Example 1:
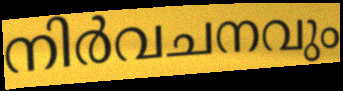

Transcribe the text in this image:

നിർവചനവും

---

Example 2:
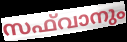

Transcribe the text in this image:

സഫ്‌വാനും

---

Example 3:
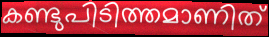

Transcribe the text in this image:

കണ്ടുപിടിത്തമാണിത്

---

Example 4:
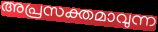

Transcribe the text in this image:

അപ്രസക്തമാവുന്ന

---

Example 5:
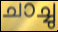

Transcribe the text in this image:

ചാച്ചു